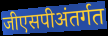
जीएसपीअंतर्गत